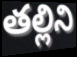
తల్లిని